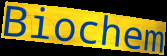
Biochem